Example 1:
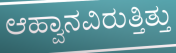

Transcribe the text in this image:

ಆಹ್ವಾನವಿರುತ್ತಿತ್ತು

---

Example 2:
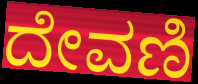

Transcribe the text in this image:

ದೇವಣಿ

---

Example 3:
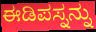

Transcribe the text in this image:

ಈಡಿಪಸ್ನನ್ನು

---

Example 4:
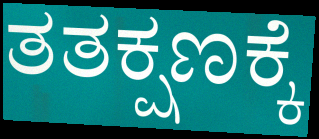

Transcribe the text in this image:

ತತಕ್ಷಣಕ್ಕೆ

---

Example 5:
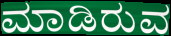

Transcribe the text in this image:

ಮಾಡಿರುವ